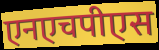
एनएचपीएस